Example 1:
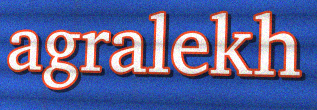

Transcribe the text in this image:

agralekh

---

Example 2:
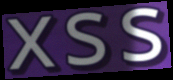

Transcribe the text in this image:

xss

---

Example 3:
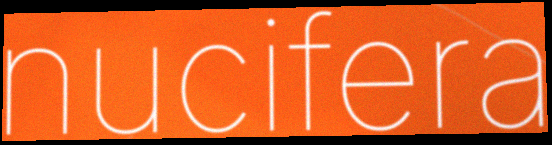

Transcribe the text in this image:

nucifera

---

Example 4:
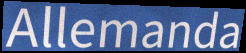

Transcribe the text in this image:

Allemanda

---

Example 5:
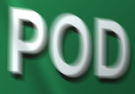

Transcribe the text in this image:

POD